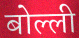
बोल्ली